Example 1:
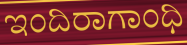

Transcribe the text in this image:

ಇಂದಿರಾಗಾಂಧಿ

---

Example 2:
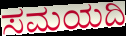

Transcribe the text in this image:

ಸಮಯದಿ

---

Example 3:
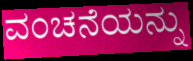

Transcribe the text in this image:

ವಂಚನೆಯನ್ನು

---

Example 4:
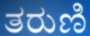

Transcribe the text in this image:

ತರುಣಿ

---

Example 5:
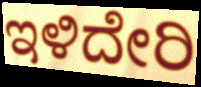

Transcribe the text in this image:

ಇಳಿದೇರಿ